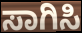
ಸಾಗಿಸಿ